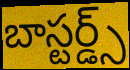
బాస్టర్డ్స్